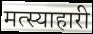
मत्स्याहारी